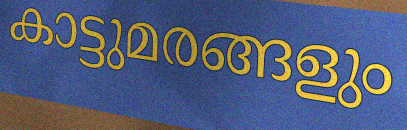
കാട്ടുമരങ്ങളും